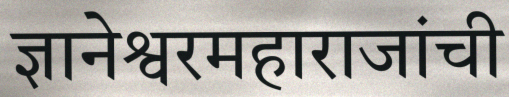
ज्ञानेश्वरमहाराजांची